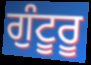
ਗੁੰਟੂਰੂ